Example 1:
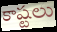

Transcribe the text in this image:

కాష్టలు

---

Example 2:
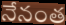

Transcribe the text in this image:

నేనంత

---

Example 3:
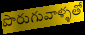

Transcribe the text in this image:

పొరుగువాళ్ళతో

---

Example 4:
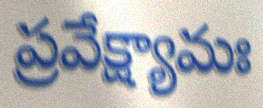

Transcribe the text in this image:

ప్రవేక్ష్యామః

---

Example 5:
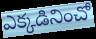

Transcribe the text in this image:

ఎక్కడినించో